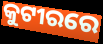
କୁଟୀରରେ